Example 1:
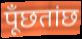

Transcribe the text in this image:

पूँछतांछ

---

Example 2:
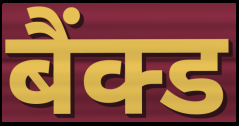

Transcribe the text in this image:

बैंक्ड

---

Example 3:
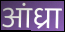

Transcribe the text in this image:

आंध्रा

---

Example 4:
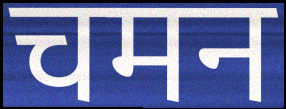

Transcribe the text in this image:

चमन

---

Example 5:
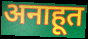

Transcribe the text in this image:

अनाहूत